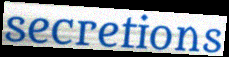
secretions